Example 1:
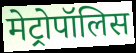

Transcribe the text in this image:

मेट्रोपॉलिस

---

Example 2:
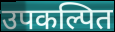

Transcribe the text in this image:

उपकल्पित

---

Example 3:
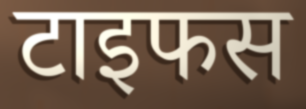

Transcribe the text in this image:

टाइफस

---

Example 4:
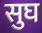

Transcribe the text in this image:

सुघ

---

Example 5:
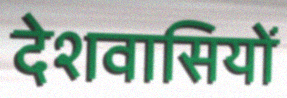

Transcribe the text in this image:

देशवासियों